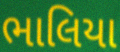
ભાલિયા